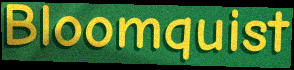
Bloomquist